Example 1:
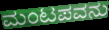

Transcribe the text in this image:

ಮಂಟಪವನು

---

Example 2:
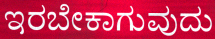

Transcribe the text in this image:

ಇರಬೇಕಾಗುವುದು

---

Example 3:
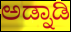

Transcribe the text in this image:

ಅಡ್ನಾಡಿ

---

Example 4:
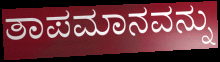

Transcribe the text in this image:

ತಾಪಮಾನವನ್ನು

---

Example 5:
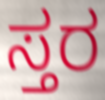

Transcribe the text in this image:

ಸ್ತರ